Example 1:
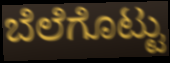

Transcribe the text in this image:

ಬೆಲೆಗೊಟ್ಟು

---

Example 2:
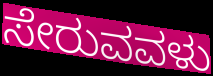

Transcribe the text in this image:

ಸೇರುವವಳು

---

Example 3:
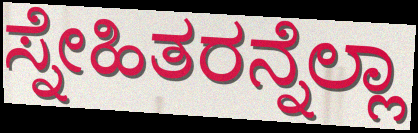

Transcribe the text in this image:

ಸ್ನೇಹಿತರನ್ನೆಲ್ಲಾ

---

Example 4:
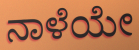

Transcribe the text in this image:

ನಾಳೆಯೇ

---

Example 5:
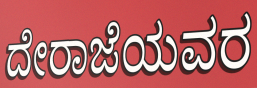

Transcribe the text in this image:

ದೇರಾಜೆಯವರ